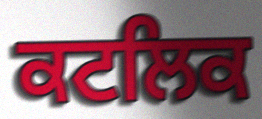
ਕਟਲਿਕ